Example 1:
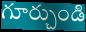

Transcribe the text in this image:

గూర్చుండి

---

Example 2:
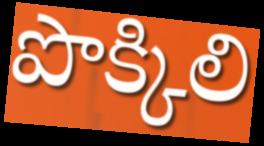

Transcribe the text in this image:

పొక్కిలి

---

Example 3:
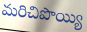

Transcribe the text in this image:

మరిచిపొయ్యి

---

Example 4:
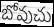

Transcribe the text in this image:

బోవుచు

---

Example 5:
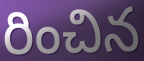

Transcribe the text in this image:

రించిన